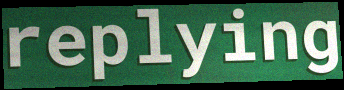
replying